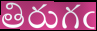
తిరుగఁ